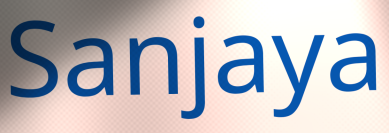
Sanjaya